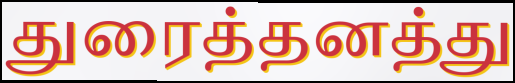
துரைத்தனத்து